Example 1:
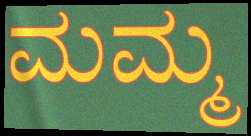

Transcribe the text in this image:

ಮಮ್ಮ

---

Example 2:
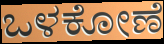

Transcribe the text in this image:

ಒಳಕೋಣೆ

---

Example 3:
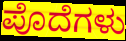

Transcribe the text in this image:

ಪೊದೆಗಳು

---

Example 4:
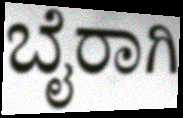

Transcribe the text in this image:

ಬೈರಾಗಿ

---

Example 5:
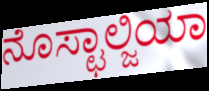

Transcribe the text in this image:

ನೊಸ್ಟಾಲ್ಜಿಯಾ